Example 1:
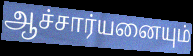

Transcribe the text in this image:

ஆச்சார்யனையும்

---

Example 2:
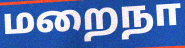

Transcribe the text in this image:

மறைநா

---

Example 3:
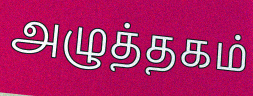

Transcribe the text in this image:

அழுத்தகம்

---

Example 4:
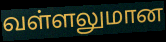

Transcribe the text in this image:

வள்ளலுமான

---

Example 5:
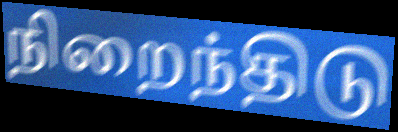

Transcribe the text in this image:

நிறைந்திடு